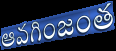
ఆవగింజంత